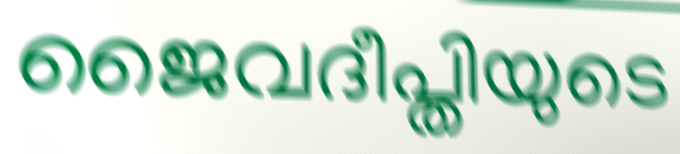
ജൈവദീപ്തിയുടെ